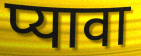
प्यावा